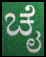
ಚೈ